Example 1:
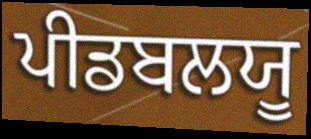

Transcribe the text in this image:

ਪੀਡਬਲਯੂ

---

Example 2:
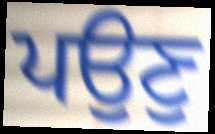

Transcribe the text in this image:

ਪਉਣੁ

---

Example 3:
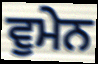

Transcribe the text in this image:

ਵੁਮੇਨ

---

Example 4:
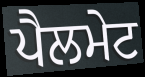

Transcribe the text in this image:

ਪੈਲਮੇਟ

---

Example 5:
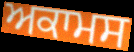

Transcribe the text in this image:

ਅਕਾਮਸ